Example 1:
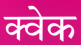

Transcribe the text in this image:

क्वेक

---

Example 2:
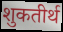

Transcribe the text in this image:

शुकतीर्थ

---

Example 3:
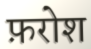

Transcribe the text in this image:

फ़रोश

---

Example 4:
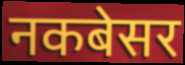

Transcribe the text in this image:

नकबेसर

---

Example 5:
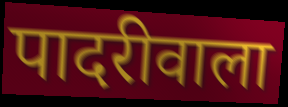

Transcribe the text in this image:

पादरीवाला